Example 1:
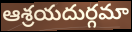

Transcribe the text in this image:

ఆశ్రయదుర్గమా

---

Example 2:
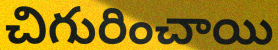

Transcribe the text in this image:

చిగురించాయి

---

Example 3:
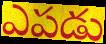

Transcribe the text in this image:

ఎపడు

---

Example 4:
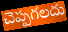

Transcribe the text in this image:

చెప్పగలదు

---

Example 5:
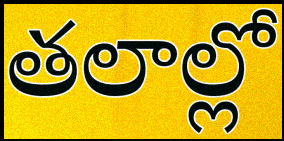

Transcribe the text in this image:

తలాల్లో